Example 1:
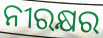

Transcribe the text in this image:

ନୀରକ୍ଷର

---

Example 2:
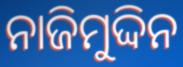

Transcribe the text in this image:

ନାଜିମୁଦ୍ଦିନ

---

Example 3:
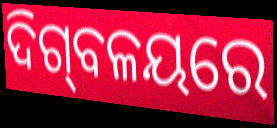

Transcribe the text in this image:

ଦିଗ୍‌ବଳୟରେ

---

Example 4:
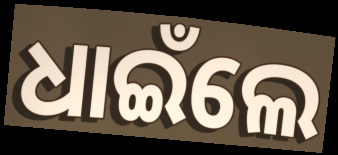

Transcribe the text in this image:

ଧାଇଁଲେ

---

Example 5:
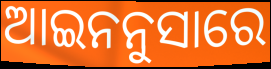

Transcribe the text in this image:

ଆଇନନୁସାରେ